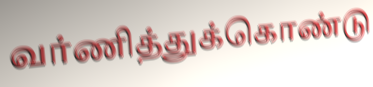
வர்ணித்துக்கொண்டு